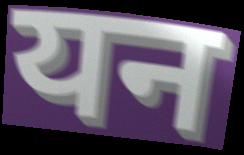
यन